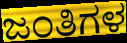
ಜಂತಿಗಳ